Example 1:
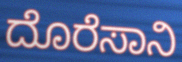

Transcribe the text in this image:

ದೊರೆಸಾನಿ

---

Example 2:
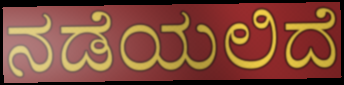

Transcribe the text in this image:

ನಡೆಯಲಿದೆ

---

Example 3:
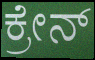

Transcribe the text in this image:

ಕ್ರೇನ್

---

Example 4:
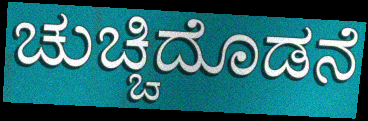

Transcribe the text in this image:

ಚುಚ್ಚಿದೊಡನೆ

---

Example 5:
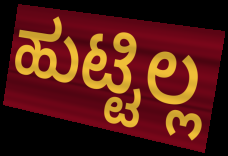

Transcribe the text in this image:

ಹುಟ್ಟಿಲ್ಲ